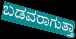
ಬಡವರಾಗುತ್ತಾ